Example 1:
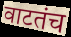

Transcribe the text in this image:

वाटतंच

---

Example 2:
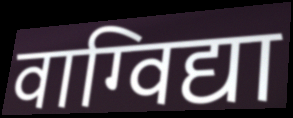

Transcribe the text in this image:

वाग्विद्या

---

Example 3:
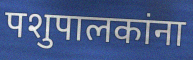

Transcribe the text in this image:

पशुपालकांना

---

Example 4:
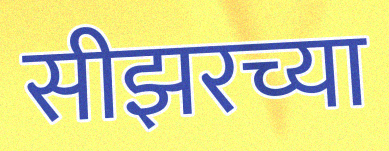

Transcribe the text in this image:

सीझरच्या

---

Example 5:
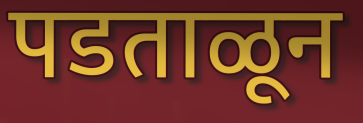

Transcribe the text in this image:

पडताळून